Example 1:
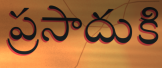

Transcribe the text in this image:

ప్రసాదుకి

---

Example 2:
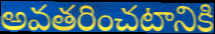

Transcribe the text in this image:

అవతరించటానికి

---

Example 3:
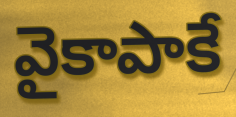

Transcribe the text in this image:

వైకాపాకే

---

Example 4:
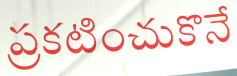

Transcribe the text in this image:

ప్రకటించుకొనే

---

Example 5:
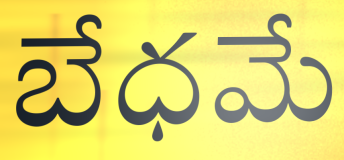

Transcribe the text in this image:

బేధమే